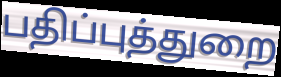
பதிப்புத்துறை